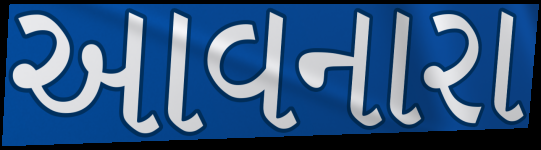
આવનારા